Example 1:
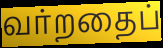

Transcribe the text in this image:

வர்றதைப்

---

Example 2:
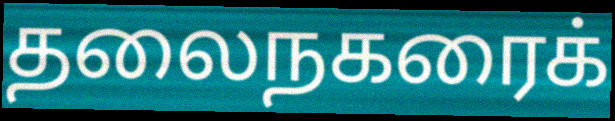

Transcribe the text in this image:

தலைநகரைக்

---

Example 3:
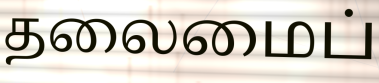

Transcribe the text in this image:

தலைமைப்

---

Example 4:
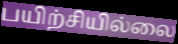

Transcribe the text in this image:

பயிற்சியில்லை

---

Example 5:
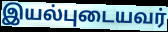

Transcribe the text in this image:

இயல்புடையவர்